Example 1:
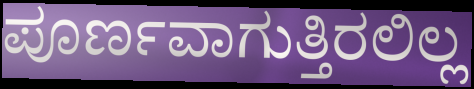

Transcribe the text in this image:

ಪೂರ್ಣವಾಗುತ್ತಿರಲಿಲ್ಲ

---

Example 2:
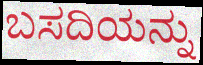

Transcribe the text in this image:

ಬಸದಿಯನ್ನು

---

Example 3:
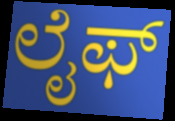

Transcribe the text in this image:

ಲೈಫ್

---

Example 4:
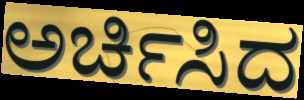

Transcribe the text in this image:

ಅರ್ಚಿಸಿದ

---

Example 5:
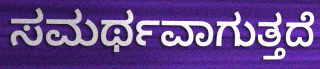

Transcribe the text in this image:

ಸಮರ್ಥವಾಗುತ್ತದೆ